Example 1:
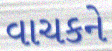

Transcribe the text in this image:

વાચકને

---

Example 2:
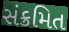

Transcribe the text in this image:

સંક્રમિત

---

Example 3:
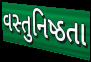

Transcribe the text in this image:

વસ્તુનિષ્ઠતા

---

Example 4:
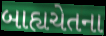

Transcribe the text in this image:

બાહ્યચેતના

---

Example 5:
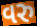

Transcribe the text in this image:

વરુ